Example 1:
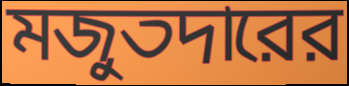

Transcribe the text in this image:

মজুতদারের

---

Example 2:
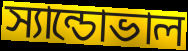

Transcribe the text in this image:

স্যান্ডোভাল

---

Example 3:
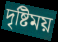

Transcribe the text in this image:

দৃষ্টিময়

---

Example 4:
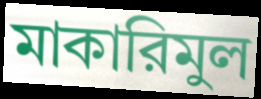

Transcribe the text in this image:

মাকারিমুল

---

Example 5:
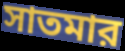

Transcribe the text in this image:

সাতমার